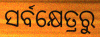
ସର୍ବକ୍ଷେତ୍ରରୁ